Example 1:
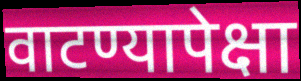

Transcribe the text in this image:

वाटण्यापेक्षा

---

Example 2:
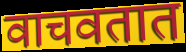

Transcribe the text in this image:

वाचवतात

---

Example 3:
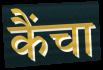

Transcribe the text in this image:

कैंचा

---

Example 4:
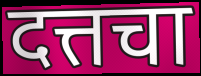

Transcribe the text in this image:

दत्तचा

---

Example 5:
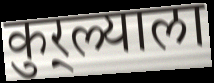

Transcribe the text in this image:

कुर्ल्याला